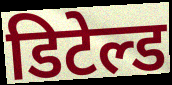
डिटेल्ड